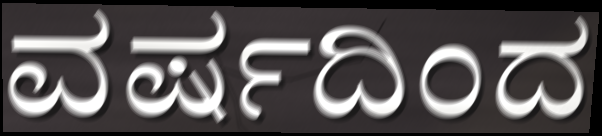
ವರ್ಷದಿಂದ